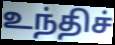
உந்திச்